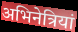
अभिनेत्रियां